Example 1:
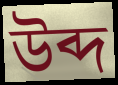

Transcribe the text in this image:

উব্দ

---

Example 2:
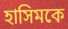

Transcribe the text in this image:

হাসিমকে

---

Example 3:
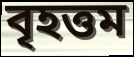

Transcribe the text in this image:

বৃহত্তম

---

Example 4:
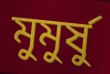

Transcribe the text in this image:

মুমুর্ষু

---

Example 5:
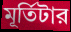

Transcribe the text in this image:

মূর্তিটার